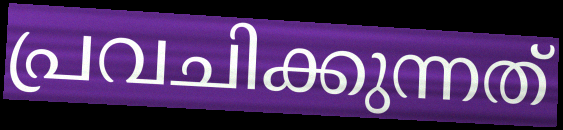
പ്രവചിക്കുന്നത്